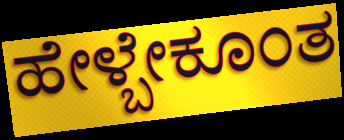
ಹೇಳ್ಬೇಕೂಂತ